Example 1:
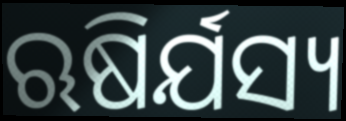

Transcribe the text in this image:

ଋଷିର୍ଯସ୍ୟ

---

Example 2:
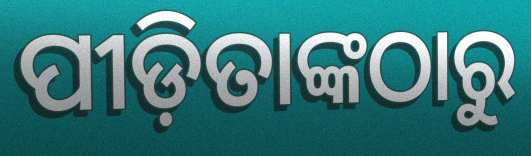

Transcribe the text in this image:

ପୀଡ଼ିତାଙ୍କଠାରୁ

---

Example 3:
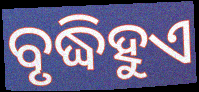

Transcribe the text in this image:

ବୃଦ୍ଧିହୁଏ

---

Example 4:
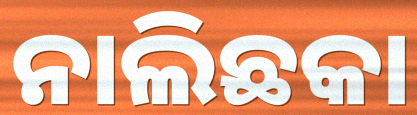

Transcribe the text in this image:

ନାଲିଛକା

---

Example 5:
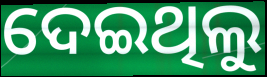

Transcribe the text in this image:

ଦେଇଥିଲୁ